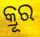
କ୍ରୂର